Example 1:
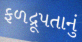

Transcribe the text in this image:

ફળદ્રૂપતાનું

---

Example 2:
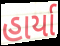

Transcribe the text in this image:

હાર્યા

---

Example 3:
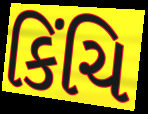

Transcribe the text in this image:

કિંચિ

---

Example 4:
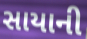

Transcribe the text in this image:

સાયાની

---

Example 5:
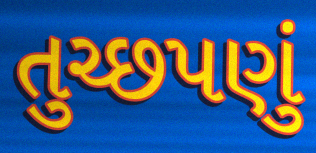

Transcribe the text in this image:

તુચ્છપણું